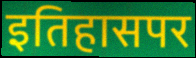
इतिहासपर